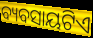
ବ୍ୟବସାୟଟିଏ